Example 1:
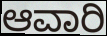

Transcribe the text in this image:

ಆವಾರಿ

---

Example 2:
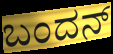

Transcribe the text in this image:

ಬಂದನ್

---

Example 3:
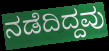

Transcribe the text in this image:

ನಡೆದಿದ್ದವು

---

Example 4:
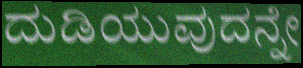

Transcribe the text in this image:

ದುಡಿಯುವುದನ್ನೇ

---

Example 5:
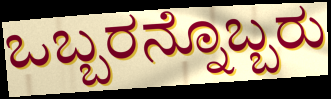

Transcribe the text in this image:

ಒಬ್ಬರನ್ನೊಬ್ಬರು